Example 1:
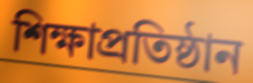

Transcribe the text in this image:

শিক্ষাপ্রতিষ্ঠান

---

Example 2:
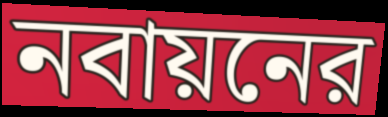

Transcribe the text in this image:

নবায়নের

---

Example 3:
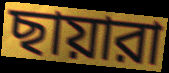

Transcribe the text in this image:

ছায়ারা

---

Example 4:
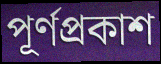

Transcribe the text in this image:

পূর্ণপ্রকাশ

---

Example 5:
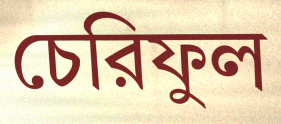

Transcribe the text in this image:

চেরিফুল